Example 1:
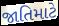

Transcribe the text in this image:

જાતિમાટે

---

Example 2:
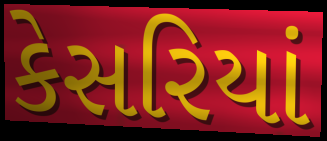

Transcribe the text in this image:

કેસરિયાં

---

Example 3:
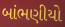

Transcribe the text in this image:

બાંભણીયો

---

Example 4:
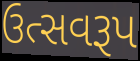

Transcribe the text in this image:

ઉત્સવરૂપ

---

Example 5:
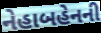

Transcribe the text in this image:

નેહાબહેનની